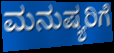
ಮನುಷ್ಯರಿಗೆ